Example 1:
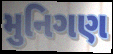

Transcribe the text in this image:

મુનિગણ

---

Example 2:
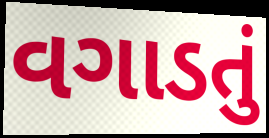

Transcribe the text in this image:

વગાડતું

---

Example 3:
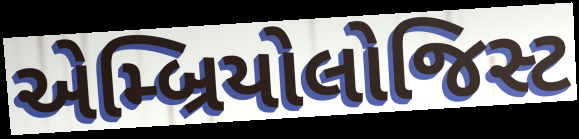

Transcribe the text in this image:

એમ્બ્રિયોલોજિસ્ટ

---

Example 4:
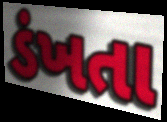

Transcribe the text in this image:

ડંખતા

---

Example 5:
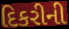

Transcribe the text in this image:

દિકરીની